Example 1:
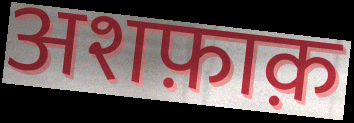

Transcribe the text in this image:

अशफ़ाक़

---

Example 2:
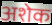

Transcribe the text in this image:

अशेक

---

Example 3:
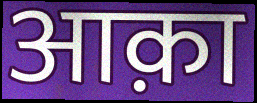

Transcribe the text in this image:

आक़ा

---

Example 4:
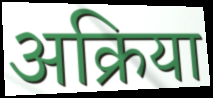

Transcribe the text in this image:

अक्रिया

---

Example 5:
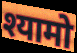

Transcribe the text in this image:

श्यामो